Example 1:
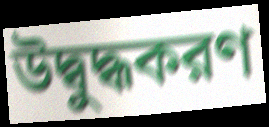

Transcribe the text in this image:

উদ্বুদ্ধকরণ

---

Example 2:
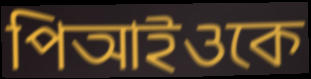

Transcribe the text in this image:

পিআইওকে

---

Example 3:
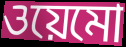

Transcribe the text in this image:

ওয়েমো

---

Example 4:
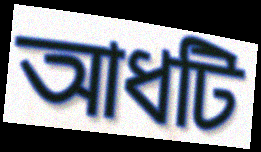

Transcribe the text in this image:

আধটি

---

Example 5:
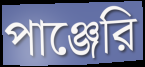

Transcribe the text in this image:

পাঞ্জেরি